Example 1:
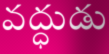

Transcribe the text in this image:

వద్ధుడు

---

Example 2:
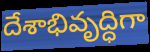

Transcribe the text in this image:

దేశాభివృద్ధిగా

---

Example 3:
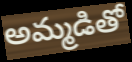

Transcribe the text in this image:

అమ్మడితో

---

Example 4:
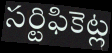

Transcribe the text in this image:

సర్టిఫికెట్ల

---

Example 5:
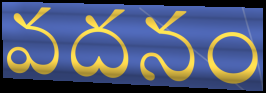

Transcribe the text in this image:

వదనం